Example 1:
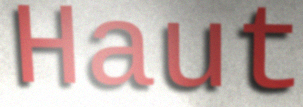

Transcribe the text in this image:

Haut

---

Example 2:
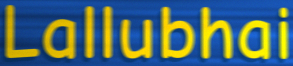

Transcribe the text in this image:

Lallubhai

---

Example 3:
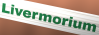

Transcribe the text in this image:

Livermorium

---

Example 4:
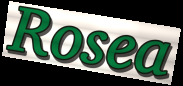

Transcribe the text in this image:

Rosea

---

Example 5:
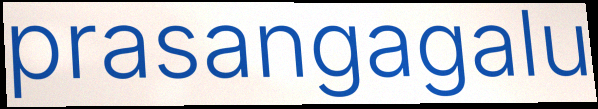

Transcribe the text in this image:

prasangagalu